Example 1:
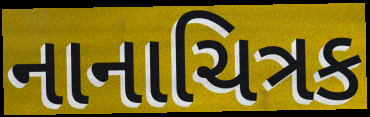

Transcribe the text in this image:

નાનાચિત્રક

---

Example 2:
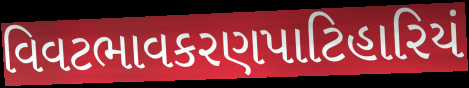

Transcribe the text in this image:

વિવટભાવકરણપાટિહારિયં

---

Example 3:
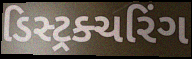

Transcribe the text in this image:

ડિસ્ટ્રક્ચરિંગ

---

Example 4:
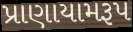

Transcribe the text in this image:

પ્રાણાયામરૂપ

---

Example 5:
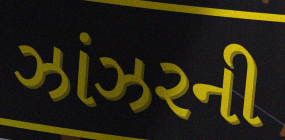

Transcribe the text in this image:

ઝાંઝરની